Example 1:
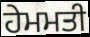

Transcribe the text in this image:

ਹੇਮਮਤੀ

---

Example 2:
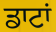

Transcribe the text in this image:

ਡਾਟਾਂ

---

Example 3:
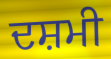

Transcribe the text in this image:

ਦਸ਼ਮੀ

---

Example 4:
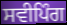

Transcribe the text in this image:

ਸਵੀਪਿੰਗ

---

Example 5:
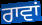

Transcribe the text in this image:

ਰਾਵਾਂ